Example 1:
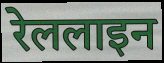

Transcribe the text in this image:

रेललाइन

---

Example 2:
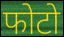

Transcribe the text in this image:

फोटो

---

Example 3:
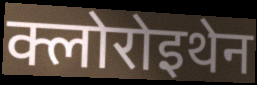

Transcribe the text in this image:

क्लोरोइथेन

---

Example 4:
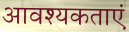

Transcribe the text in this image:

आवश्यकताएं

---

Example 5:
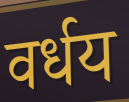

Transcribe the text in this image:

वर्धय